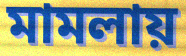
মামলায়